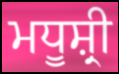
ਮਧੂਸ਼੍ਰੀ